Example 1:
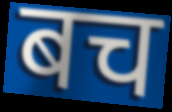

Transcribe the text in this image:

बच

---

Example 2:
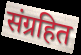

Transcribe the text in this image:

संग्रहित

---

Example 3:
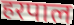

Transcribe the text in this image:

हरपाल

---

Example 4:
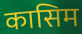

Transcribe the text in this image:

कासिम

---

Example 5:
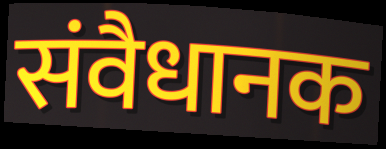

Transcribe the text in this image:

संवैधानक